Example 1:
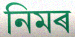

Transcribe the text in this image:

নিমৰ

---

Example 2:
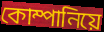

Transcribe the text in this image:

কোম্পানিয়ে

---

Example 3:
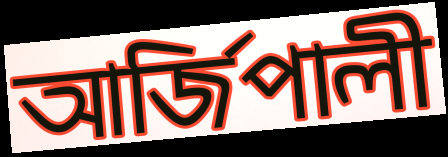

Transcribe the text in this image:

আৰ্জিপালী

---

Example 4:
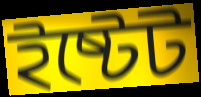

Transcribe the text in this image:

ইষ্টেট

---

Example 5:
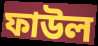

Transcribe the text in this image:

ফাউল